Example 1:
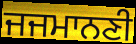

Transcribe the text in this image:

ਜਜਮਾਨਣੀ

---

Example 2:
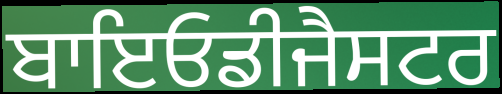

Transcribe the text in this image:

ਬਾਇਓਡੀਜੈਸਟਰ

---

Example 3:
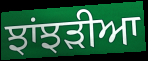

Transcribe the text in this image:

ਝਾਂਝੜੀਆ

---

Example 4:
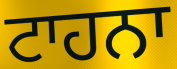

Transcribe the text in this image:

ਟਾਹਨਾ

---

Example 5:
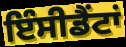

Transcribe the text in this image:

ਇੰਸੀਡੈਂਟਾਂ